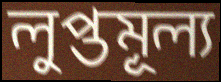
লুপ্তমূল্য